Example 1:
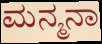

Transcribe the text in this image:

ಮನ್ಮನಾ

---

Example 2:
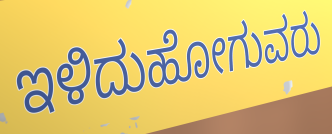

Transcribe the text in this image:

ಇಳಿದುಹೋಗುವರು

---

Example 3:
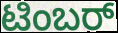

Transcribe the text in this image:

ಟಿಂಬರ್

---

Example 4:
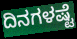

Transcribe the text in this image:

ದಿನಗಳಷ್ಟೆ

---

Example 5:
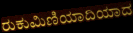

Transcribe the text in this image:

ರುಕುಮಿಣಿಯಾದಿಯಾದ